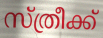
സ്ത്രീക്ക്